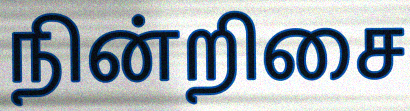
நின்றிசை